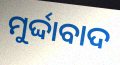
ମୁର୍ଦ୍ଦାବାଦ